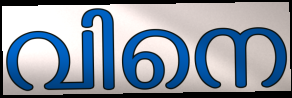
വിനെ